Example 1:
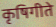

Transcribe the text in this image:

कृषिगीते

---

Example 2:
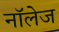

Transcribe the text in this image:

नॉलेज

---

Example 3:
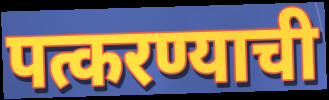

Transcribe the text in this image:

पत्करण्याची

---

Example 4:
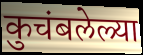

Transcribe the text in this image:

कुचंबलेल्या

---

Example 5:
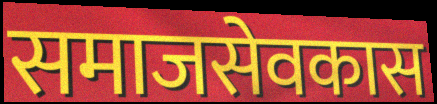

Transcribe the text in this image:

समाजसेवकास